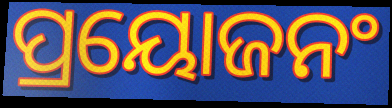
ପ୍ରୟୋଜନଂ